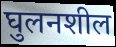
घुलनशील